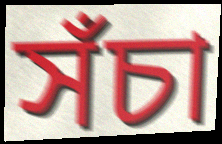
সঁচা